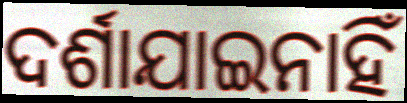
ଦର୍ଶାଯାଇନାହିଁ